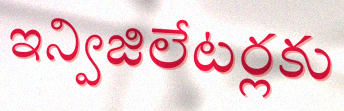
ఇన్విజిలేటర్లకు